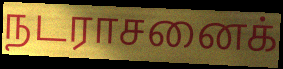
நடராசனைக்